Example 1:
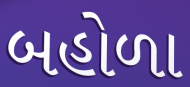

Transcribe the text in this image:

બહોળા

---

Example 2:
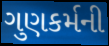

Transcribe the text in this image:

ગુણકર્મની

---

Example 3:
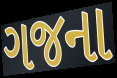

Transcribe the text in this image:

ગજના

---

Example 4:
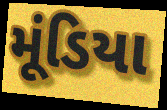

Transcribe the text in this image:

મૂંડિયા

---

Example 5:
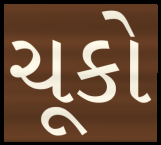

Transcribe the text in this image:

ચૂકો